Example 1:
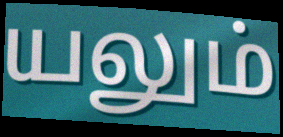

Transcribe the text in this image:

யலும்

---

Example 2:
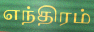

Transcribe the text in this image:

எந்திரம்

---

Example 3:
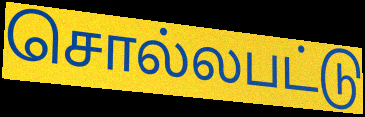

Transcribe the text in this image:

சொல்லபட்டு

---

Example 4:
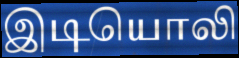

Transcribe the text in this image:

இடியொலி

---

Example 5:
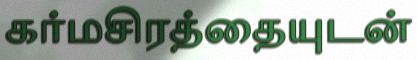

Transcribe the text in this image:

கர்மசிரத்தையுடன்